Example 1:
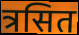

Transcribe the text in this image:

त्रसित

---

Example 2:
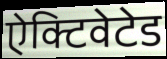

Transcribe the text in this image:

ऐक्टिवेटेड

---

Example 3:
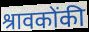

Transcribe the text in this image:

श्रावकोंकी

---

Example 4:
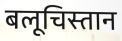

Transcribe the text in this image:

बलूचिस्तान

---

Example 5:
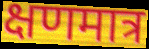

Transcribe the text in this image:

क्षणमात्र